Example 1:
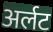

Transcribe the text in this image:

अर्लट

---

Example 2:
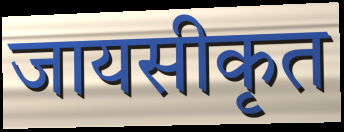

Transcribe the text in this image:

जायसीकृत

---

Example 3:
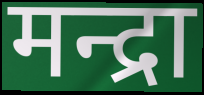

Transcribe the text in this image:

मन्द्रा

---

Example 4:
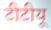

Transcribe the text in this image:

टीटीयू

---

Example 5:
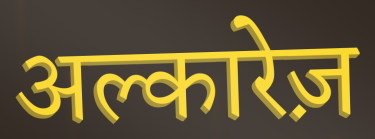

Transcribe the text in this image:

अल्कारेज़